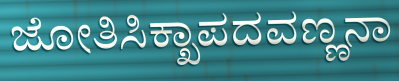
ಜೋತಿಸಿಕ್ಖಾಪದವಣ್ಣನಾ